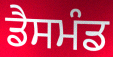
ਡੈਸਮੰਡ